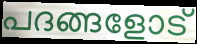
പദങ്ങളോട്